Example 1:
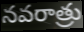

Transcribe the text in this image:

నవరాత్రు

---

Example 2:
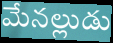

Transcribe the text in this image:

మేనల్లుడు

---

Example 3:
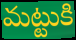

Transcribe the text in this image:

మట్టుకి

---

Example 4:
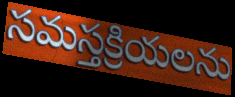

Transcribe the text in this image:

సమస్తక్రియలను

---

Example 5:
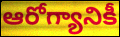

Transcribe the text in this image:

ఆరోగ్యానికీ